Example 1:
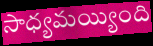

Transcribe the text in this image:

సాధ్యమయ్యింది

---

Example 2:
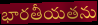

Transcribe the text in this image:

భారతీయతను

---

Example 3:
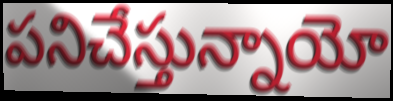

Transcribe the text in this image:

పనిచేస్తున్నాయో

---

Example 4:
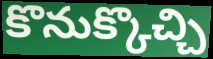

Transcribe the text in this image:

కొనుక్కొచ్చి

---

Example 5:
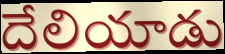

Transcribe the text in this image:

దేలియాడు